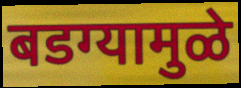
बडग्यामुळे